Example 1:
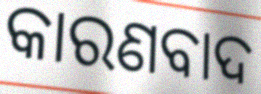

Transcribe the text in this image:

କାରଣବାଦ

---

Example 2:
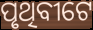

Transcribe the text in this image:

ପୃଥିବୀଟେ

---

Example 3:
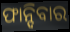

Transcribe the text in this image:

ଫାନ୍ଦିବାର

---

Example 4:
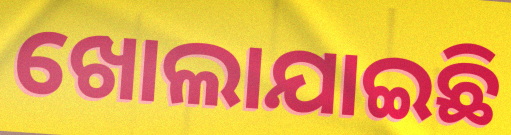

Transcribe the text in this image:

ଖୋଲାଯାଇଛି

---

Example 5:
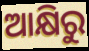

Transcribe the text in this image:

ଆକ୍ଷିରୁ